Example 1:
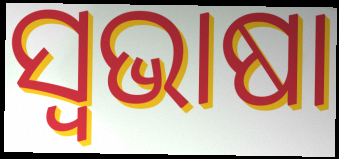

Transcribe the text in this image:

ସ୍ୱଭାଷା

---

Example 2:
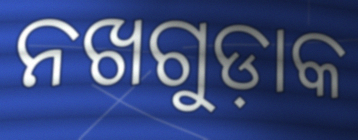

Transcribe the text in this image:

ନଖଗୁଡ଼ାକ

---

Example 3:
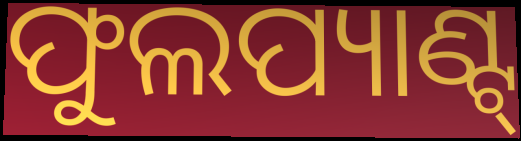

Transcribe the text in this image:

ଫୁଲପ୍ୟାଣ୍ଟ୍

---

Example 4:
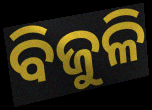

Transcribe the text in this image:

ବିଜୁଳି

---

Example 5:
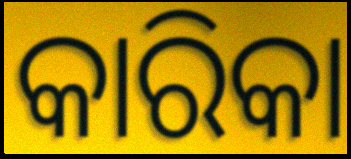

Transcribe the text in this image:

କାରିକା